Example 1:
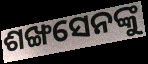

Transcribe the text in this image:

ଶଙ୍ଖସେନଙ୍କୁ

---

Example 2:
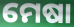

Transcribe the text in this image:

ମେଷା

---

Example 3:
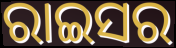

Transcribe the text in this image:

ରାଇସର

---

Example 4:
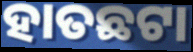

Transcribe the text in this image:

ହାତଛଟା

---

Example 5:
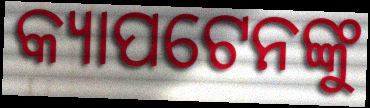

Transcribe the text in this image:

କ୍ୟାପଟେନଙ୍କୁ